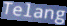
Telang